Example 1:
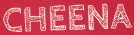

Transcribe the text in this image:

CHEENA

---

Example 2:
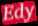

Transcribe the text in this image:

Edy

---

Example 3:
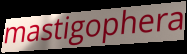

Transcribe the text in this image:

mastigophera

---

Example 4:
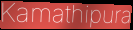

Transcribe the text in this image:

Kamathipura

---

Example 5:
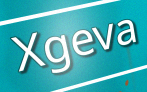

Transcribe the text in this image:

Xgeva